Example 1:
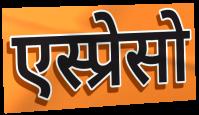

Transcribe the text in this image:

एस्प्रेसो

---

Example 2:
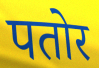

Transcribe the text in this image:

पतोर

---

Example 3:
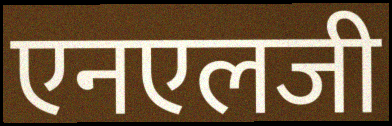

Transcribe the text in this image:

एनएलजी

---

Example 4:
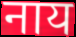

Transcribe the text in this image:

नाय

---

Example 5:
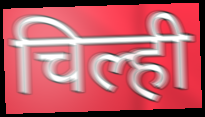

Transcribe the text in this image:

चिल्ही